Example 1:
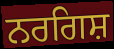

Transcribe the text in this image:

ਨਰਗਿਸ਼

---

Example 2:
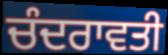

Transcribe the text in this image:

ਚੰਦਰਾਵਤੀ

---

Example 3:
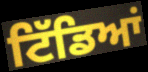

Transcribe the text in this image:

ਟਿੱਡਿਆਂ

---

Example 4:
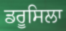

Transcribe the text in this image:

ਡਰੂਸਿਲਾ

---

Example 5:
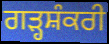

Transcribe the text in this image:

ਗੜ੍ਹਸ਼ੰਕਰੀ